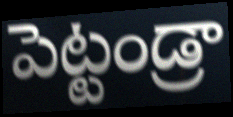
పెట్టండ్రా